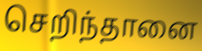
செறிந்தானை